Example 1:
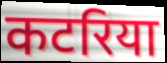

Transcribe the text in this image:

कटरिया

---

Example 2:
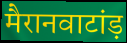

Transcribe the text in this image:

मैरानवाटांड़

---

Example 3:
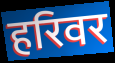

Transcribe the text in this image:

हरिवर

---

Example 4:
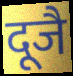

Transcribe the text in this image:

दूजै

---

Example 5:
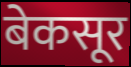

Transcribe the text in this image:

बेकसूर